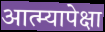
आत्म्यापेक्षा